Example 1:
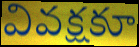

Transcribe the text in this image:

వివక్షకూ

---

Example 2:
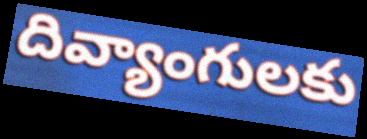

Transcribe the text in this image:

దివ్యాంగులకు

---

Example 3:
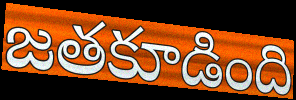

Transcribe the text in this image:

జతకూడింది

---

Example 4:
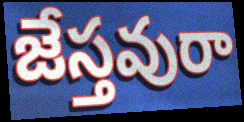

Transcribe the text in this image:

జేస్తవురా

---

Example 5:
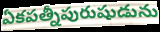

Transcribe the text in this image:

ఏకపత్నీపురుషుడును